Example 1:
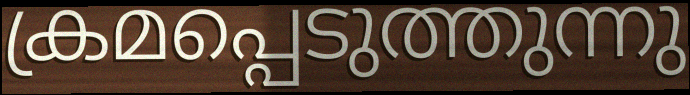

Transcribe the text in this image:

ക്രമപ്പെടുത്തുന്നു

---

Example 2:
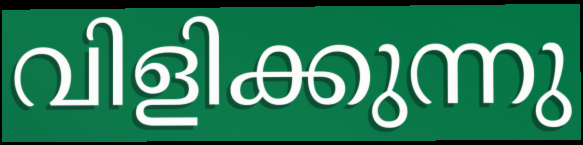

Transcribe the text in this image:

വിളിക്കുന്നു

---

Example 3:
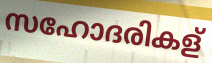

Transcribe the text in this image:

സഹോദരികള്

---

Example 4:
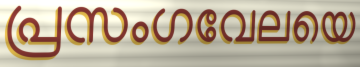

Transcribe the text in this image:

പ്രസംഗവേലയെ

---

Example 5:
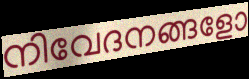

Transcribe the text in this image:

നിവേദനങ്ങളോ